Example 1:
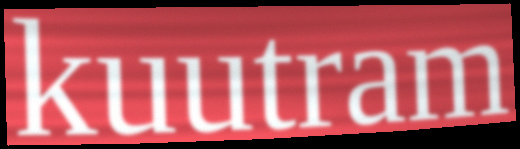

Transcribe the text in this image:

kuutram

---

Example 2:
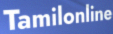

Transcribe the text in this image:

Tamilonline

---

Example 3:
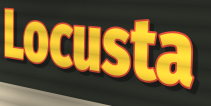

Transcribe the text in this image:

Locusta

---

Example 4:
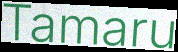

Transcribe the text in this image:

Tamaru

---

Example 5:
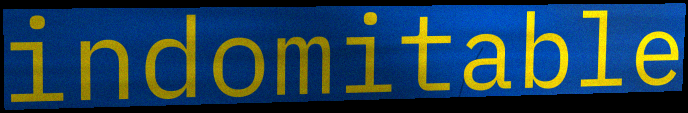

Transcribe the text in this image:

indomitable